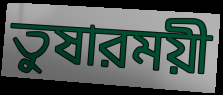
তুষারময়ী